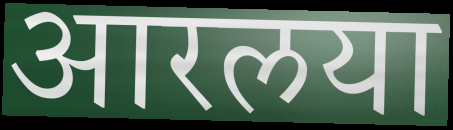
आरलया